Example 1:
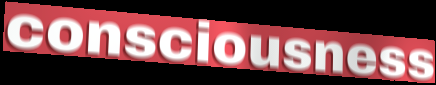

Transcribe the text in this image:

consciousness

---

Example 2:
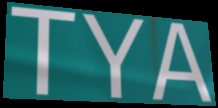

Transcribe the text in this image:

TYA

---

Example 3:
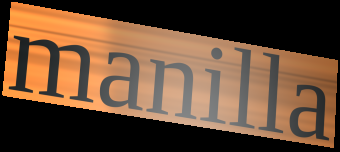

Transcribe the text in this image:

manilla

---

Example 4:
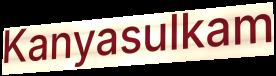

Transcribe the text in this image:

Kanyasulkam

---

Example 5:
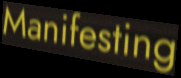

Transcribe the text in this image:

Manifesting